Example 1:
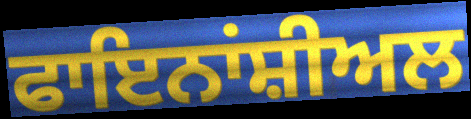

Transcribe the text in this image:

ਫਾਇਨਾਂਸ਼ੀਅਲ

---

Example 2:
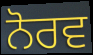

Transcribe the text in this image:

ਨੋਰਵ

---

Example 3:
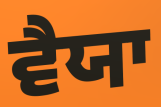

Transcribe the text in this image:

ਵੈਯਾ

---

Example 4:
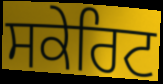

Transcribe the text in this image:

ਸਕੇਰਿਟ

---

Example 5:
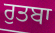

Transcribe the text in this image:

ਰੁਤਬਾ